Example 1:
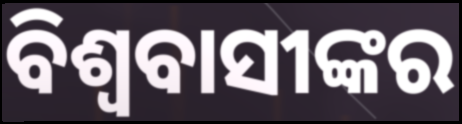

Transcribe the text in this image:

ବିଶ୍ୱବାସୀଙ୍କର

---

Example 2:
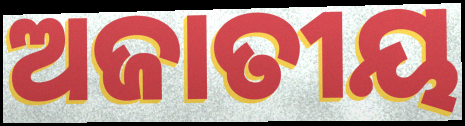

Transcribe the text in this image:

ଅଜାତୀୟ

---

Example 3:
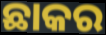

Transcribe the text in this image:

ଛାକର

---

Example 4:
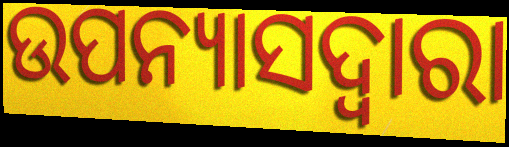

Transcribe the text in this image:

ଉପନ୍ୟାସଦ୍ୱାରା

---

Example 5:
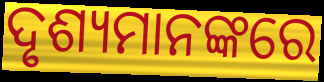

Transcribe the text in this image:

ଦୃଶ୍ୟମାନଙ୍କରେ